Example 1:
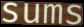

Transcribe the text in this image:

sums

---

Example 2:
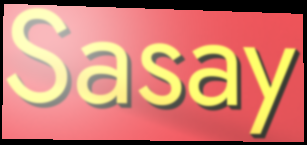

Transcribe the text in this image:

Sasay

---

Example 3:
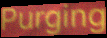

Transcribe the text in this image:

Purging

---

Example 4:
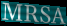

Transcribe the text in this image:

MRSA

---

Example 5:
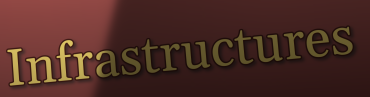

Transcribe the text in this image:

Infrastructures